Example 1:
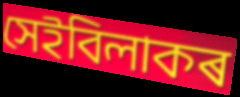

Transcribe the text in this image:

সেইবিলাকৰ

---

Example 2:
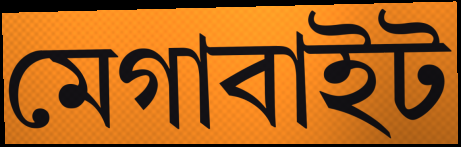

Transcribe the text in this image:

মেগাবাইট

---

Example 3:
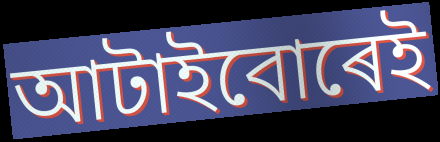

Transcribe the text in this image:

আটাইবোৰেই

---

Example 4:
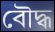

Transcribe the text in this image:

বৌদ্ধ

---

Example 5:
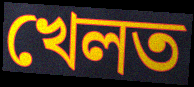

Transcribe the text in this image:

খেলত